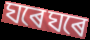
ঘৰেঘৰে